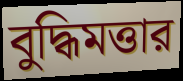
বুদ্ধিমত্তার